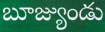
బూజ్యుండు